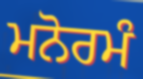
ਮਨੋਰਮੰ